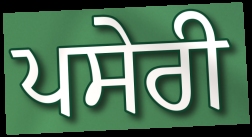
ਪਸੇਰੀ